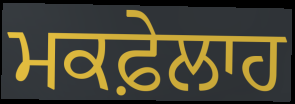
ਮਕਫ਼ੇਲਾਹ